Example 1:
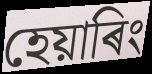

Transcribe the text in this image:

হেয়াৰিং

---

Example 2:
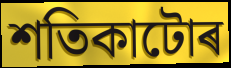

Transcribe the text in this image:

শতিকাটোৰ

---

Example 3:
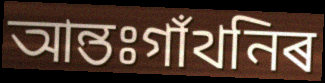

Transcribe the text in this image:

আন্তঃগাঁথনিৰ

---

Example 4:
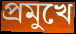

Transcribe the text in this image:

প্ৰমুখে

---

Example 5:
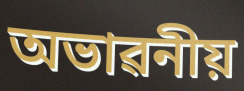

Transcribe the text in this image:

অভাৱনীয়